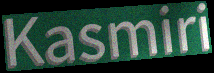
Kasmiri